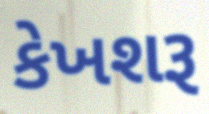
કેખશરૂ